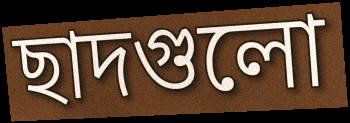
ছাদগুলো